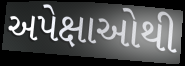
અપેક્ષાઓથી